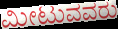
ಮೀಟುವವರು